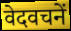
वेदवचनें